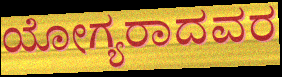
ಯೋಗ್ಯರಾದವರ